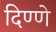
दिण्णे